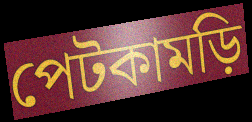
পেটকামড়ি